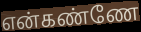
என்கண்ணே